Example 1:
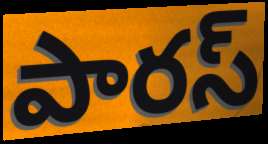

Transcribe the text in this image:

పారస్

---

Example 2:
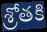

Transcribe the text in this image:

శ్రోతకి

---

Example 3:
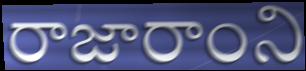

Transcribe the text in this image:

రాజారాంని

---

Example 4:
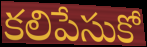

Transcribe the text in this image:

కలిపేసుకో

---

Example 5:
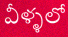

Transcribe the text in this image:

వీళ్ళలో